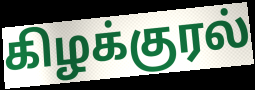
கிழக்குரல்